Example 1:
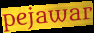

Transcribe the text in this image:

pejawar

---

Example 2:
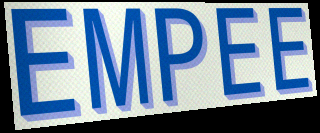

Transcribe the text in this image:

EMPEE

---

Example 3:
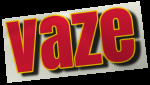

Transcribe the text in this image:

vaze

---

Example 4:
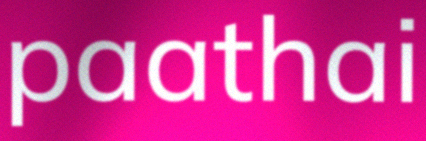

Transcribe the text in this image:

paathai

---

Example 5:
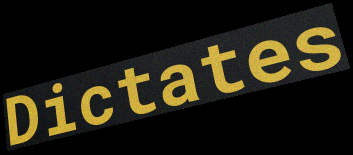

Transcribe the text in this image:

Dictates